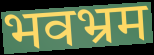
भवभ्रम